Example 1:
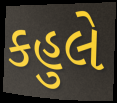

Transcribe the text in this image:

કહુલે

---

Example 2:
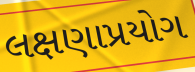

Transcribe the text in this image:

લક્ષણાપ્રયોગ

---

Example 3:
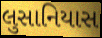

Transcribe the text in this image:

લુસાનિયાસ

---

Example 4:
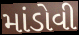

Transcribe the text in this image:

માંડોવી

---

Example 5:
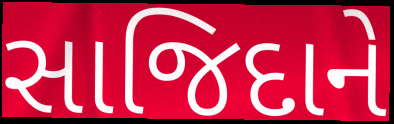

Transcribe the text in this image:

સાજિદાને